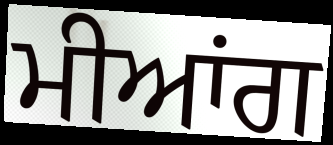
ਮੀਆਂਗ